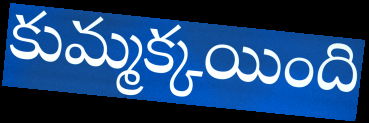
కుమ్మక్కయింది